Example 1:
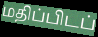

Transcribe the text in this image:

மதிப்பிடப்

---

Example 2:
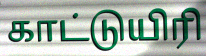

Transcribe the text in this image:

காட்டுயிரி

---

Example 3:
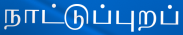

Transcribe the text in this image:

நாட்டுப்புறப்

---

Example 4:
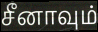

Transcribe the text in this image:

சீனாவும்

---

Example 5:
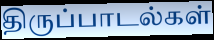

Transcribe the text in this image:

திருப்பாடல்கள்